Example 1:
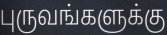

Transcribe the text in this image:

புருவங்களுக்கு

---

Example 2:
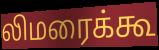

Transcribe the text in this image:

லிமரைக்கூ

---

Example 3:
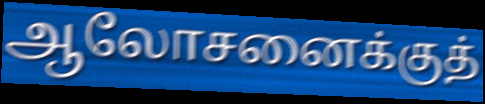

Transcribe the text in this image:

ஆலோசனைக்குத்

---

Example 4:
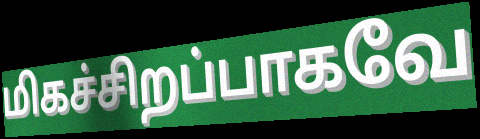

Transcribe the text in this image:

மிகச்சிறப்பாகவே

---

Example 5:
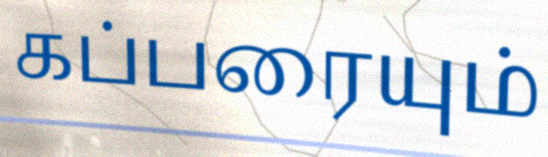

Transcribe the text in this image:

கப்பரையும்